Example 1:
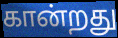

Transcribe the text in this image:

கான்றது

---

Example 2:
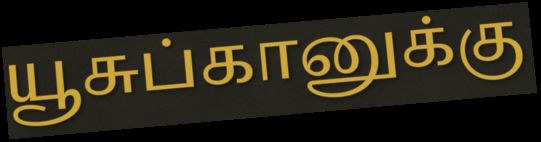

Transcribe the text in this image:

யூசுப்கானுக்கு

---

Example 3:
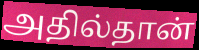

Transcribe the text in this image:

அதில்தான்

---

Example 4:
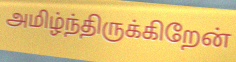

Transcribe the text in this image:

அமிழ்ந்திருக்கிறேன்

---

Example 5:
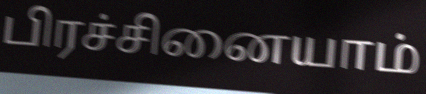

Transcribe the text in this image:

பிரச்சினையாம்